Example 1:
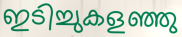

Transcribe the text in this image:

ഇടിച്ചുകളഞ്ഞു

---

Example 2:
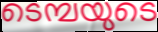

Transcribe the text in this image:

ടെമ്പയുടെ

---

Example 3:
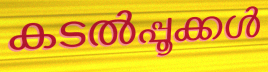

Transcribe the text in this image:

കടൽപ്പൂക്കൾ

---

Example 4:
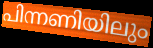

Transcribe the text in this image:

പിന്നണിയിലും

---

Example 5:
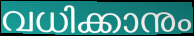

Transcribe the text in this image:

വധിക്കാനും